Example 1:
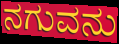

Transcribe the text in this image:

ನಗುವನು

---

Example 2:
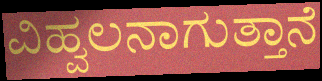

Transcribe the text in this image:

ವಿಹ್ವಲನಾಗುತ್ತಾನೆ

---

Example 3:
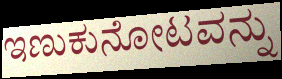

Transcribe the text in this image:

ಇಣುಕುನೋಟವನ್ನು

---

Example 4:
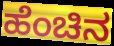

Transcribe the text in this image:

ಹೆಂಚಿನ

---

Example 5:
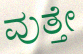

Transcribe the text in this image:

ವುತ್ತೇ